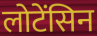
लोटेंसिन